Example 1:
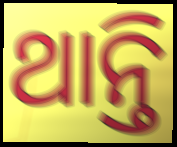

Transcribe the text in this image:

ଥାନ୍ତି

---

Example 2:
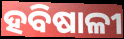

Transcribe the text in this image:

ହବିଷାଳୀ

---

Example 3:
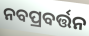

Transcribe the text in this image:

ନବପ୍ରବର୍ତ୍ତନ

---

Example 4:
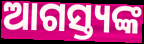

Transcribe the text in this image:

ଆଗସ୍ତ୍ୟଙ୍କ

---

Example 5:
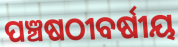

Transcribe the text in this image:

ପଞ୍ଚଷଠୀବର୍ଷୀୟ